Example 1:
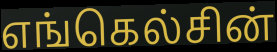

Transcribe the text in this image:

எங்கெல்சின்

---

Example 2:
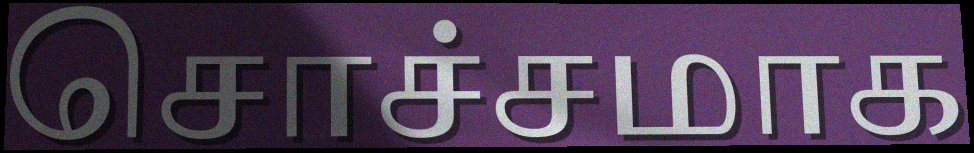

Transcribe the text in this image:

சொச்சமாக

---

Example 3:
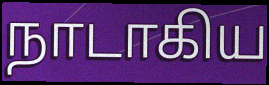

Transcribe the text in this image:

நாடாகிய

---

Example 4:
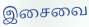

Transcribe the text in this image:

இசைவை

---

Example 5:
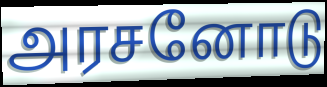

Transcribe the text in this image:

அரசனோடு